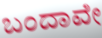
ಬಂದಾವೇ